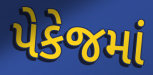
પેકેજમાં